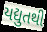
યદ્યુતથી